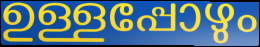
ഉള്ളപ്പോഴും